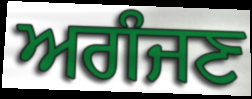
ਅਗੰਜਣ